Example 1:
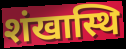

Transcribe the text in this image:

शंखास्थि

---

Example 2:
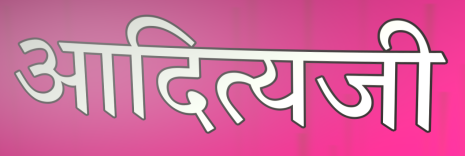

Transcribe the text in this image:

आदित्यजी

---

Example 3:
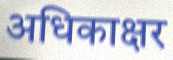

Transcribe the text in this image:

अधिकाक्षर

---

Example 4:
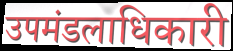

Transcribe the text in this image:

उपमंडलाधिकारी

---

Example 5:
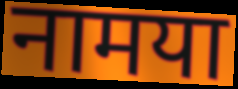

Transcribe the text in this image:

नामया